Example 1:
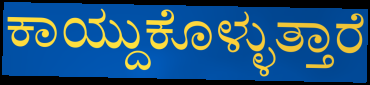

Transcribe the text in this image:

ಕಾಯ್ದುಕೊಳ್ಳುತ್ತಾರೆ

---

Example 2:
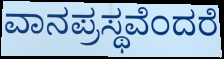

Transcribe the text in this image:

ವಾನಪ್ರಸ್ಥವೆಂದರೆ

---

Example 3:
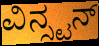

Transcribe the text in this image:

ವಿನ್ಸ್ಟನ್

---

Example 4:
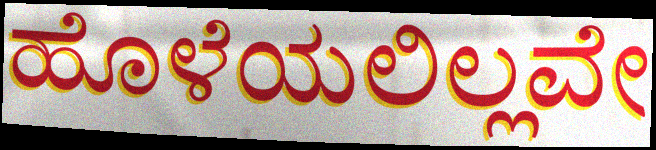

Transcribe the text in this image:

ಹೊಳೆಯಲಿಲ್ಲವೇ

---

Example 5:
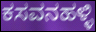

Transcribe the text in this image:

ಕಸವನಹಳ್ಳಿ